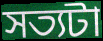
সত্যটা